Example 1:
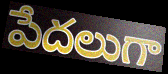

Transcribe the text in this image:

పేదలుగా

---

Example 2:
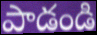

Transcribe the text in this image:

పాడండి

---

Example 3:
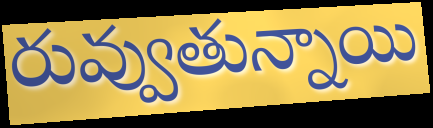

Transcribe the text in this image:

రువ్వుతున్నాయి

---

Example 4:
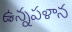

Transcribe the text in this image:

ఉన్నపళాన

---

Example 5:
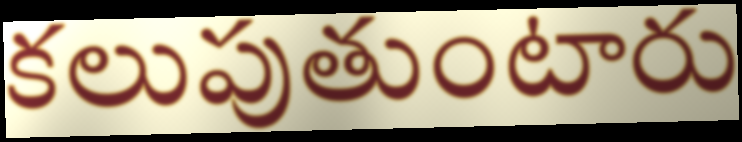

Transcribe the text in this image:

కలుపుతుంటారు